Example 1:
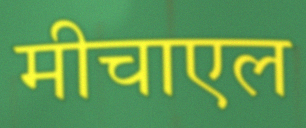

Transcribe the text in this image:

मीचाएल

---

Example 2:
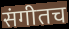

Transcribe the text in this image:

संगीतच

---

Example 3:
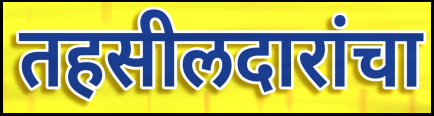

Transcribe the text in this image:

तहसीलदारांचा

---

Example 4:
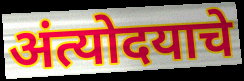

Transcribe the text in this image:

अंत्योदयाचे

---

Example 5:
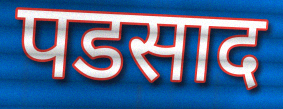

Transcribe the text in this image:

पडसाद